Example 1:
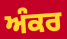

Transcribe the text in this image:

ਅੰਕਰ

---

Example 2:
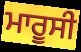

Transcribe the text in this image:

ਮਾਰੂਸੀ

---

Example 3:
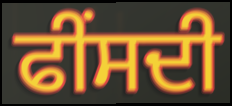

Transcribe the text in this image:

ਫੀਂਸਦੀ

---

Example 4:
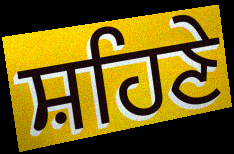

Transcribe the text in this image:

ਸ਼ਹਿਣੇ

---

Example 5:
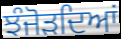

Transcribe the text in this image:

ਝੰਜੋੜਦਿਆਂ